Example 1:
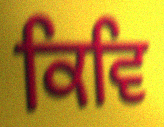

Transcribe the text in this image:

ਕਿਵਿ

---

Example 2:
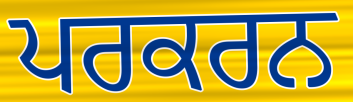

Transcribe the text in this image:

ਪਰਕਰਨ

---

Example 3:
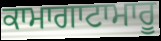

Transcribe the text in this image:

ਕਾਮਾਗਾਟਾਮਾਰੂ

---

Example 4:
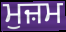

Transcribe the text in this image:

ਮੁਜ਼ਮ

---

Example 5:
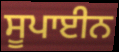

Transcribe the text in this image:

ਸੂਪਾਈਨ